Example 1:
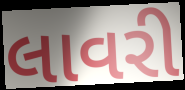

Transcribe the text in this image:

લાવરી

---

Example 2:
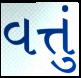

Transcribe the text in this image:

વત્તું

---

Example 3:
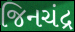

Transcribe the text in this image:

જિનચંદ્ર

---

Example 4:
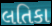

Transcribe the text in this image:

લતિકા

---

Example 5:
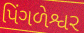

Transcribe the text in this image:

પિંગળેશ્વર